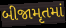
બીજામૃતમાં